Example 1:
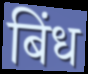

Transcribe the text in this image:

बिंध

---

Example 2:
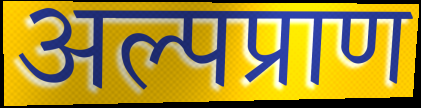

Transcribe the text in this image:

अल्पप्राण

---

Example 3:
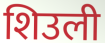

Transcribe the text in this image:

शिउली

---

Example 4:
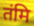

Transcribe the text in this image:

तंमि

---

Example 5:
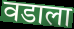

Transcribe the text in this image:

वडाला